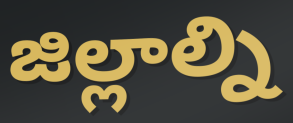
జిల్లాల్ని